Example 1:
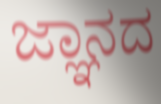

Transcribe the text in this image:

ಜ್ಞಾನದ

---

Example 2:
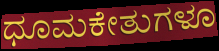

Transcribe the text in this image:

ಧೂಮಕೇತುಗಳೂ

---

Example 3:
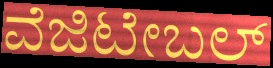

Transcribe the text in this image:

ವೆಜಿಟೇಬಲ್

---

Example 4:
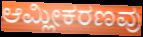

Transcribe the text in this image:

ಆಮ್ಲೀಕರಣವು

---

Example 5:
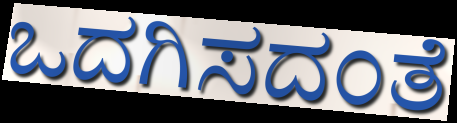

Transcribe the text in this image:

ಒದಗಿಸದಂತೆ